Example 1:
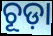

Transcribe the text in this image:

ଚୂଡ଼ା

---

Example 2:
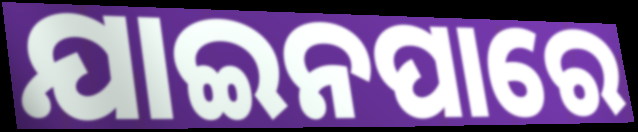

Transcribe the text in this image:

ଯାଇନପାରେ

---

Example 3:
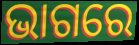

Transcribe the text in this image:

ଭାଗରେ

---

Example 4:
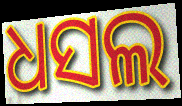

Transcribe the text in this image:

ଧସଲ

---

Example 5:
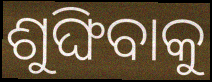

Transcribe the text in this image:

ଶୁଙ୍ଘିବାକୁ